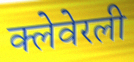
क्लेवेरली